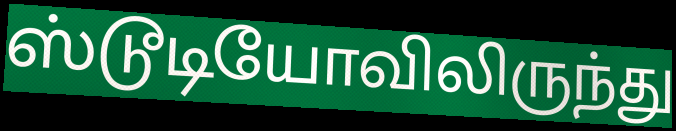
ஸ்டூடியோவிலிருந்து